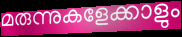
മരുന്നുകളേക്കാളും